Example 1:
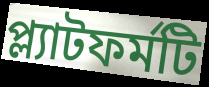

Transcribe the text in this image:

প্ল্যাটফর্মটি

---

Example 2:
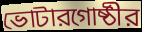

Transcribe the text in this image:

ভোটারগোষ্ঠীর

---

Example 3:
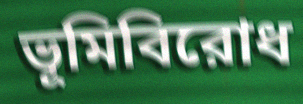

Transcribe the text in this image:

ভূমিবিরোধ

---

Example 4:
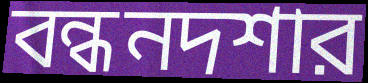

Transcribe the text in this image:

বন্ধনদশার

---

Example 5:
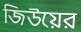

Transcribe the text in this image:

জিউয়ের